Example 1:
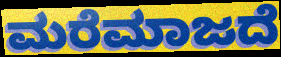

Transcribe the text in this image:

ಮರೆಮಾಜದೆ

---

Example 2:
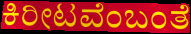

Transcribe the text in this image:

ಕಿರೀಟವೆಂಬಂತೆ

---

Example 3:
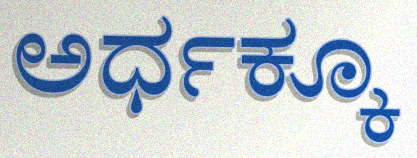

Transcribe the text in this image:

ಅರ್ಧಕ್ಕೂ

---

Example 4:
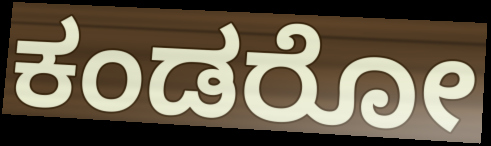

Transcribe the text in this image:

ಕಂಡರೋ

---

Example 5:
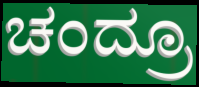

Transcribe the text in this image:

ಚಂದ್ರೂ